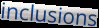
inclusions